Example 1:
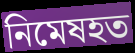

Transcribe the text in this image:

নিমেষহত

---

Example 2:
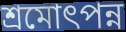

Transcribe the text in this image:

শ্রমোৎপন্ন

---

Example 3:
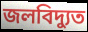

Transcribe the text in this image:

জলবিদ্যুত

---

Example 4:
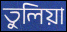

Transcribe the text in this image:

তুলিয়া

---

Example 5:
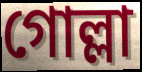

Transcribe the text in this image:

গোল্লা